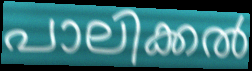
പാലിക്കൽ